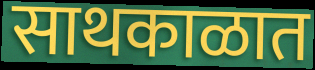
साथकाळात